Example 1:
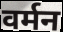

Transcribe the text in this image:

वर्मन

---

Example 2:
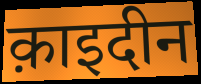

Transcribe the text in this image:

क़ाइदीन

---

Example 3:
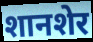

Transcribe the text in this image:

शानशेर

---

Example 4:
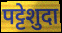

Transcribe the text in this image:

पट्टेशुदा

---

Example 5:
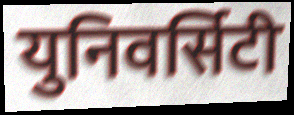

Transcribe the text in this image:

युनिवर्सिटी